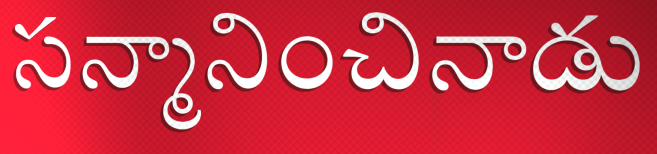
సన్మానించినాడు